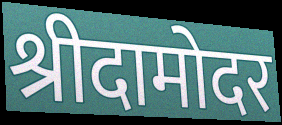
श्रीदामोदर